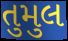
તુમુલ